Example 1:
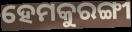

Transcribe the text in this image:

ହେମକୁରଙ୍ଗୀ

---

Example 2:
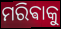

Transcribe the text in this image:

ମରିଵାକୁ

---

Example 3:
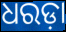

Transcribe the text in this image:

ଧରଡ଼ା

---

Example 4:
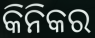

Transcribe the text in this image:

କିନିକର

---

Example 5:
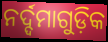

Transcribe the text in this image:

ନର୍ଦ୍ଦମାଗୁଡ଼ିକ